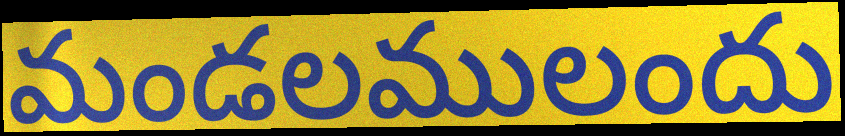
మండలములందు